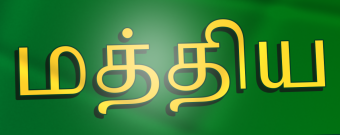
மத்திய